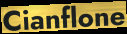
Cianflone